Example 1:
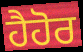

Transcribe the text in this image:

ਹੈਹੋਰ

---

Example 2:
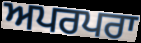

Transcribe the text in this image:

ਅਪਰਪਰਾ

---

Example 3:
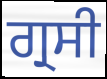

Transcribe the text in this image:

ਗ੍ਰਸੀ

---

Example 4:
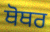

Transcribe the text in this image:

ਥੋਥਰ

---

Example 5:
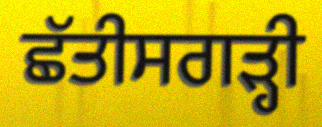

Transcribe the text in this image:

ਛੱਤੀਸਗੜ੍ਹੀ